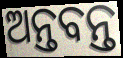
ଅନ୍ତବନ୍ତ